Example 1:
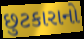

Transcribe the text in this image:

છુટકારાનો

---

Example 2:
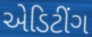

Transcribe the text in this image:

એડિટીંગ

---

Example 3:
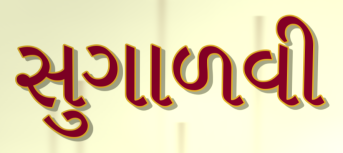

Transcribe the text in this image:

સુગાળવી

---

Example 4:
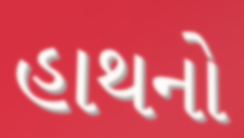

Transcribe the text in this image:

હાથનો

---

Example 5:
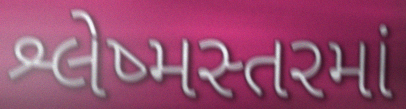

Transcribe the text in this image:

શ્લેષ્મસ્તરમાં